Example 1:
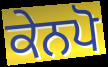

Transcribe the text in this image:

ਕੇਨਪੋ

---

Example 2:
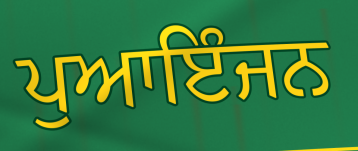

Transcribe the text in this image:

ਪੁਆਇੰਜਨ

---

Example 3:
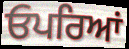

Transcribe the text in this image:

ਓਪਰਿਆਂ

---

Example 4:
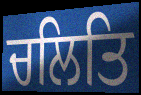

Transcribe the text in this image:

ਚਲਿਤਿ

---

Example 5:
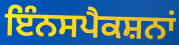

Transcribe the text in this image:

ਇੰਨਸਪੈਕਸ਼ਨਾਂ